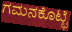
ಗಮನಕೊಟ್ಟೆ